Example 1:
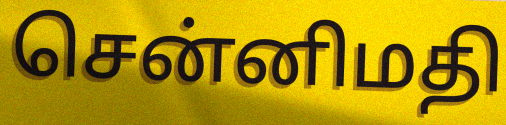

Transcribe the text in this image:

சென்னிமதி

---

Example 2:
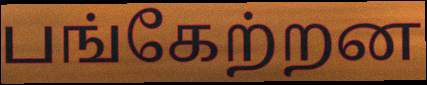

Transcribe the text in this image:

பங்கேற்றன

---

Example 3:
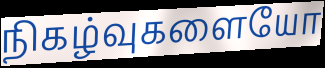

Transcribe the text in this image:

நிகழ்வுகளையோ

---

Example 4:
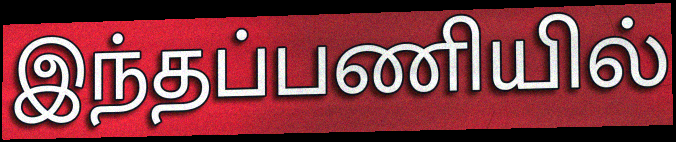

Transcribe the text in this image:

இந்தப்பணியில்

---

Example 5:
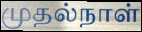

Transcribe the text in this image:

முதல்நாள்